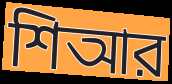
শিআর